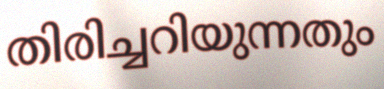
തിരിച്ചറിയുന്നതും